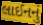
લાઈનનું